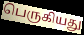
பெருகியது